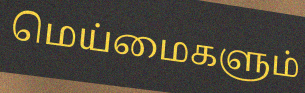
மெய்மைகளும்